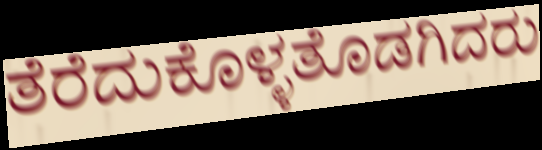
ತೆರೆದುಕೊಳ್ಳತೊಡಗಿದರು